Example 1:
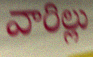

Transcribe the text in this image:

వారిల్లు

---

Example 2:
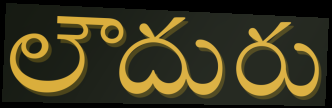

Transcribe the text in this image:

లౌదురు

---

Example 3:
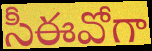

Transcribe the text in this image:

సీఈవోగా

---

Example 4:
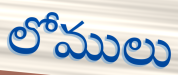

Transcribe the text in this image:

లోములు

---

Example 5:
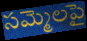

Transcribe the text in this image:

సమ్మెలపై